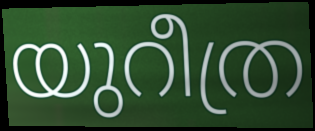
യുറീത്ര